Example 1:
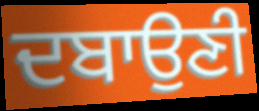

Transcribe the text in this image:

ਦਬਾਉਣੀ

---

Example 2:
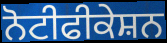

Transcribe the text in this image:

ਨੋਟੀਫੀਕੇਸ਼ਨ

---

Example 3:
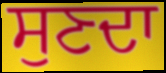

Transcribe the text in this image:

ਸੁਣਦਾ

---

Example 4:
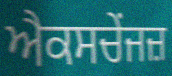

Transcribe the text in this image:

ਐਕਸਚੇਂਜਜ਼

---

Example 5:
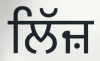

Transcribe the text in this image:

ਲਿੱਜ਼